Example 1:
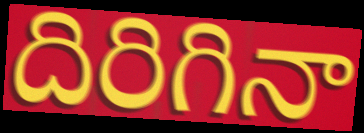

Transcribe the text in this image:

దిరిగినా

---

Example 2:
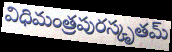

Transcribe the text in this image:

విధిమంత్రపురస్కృతమ్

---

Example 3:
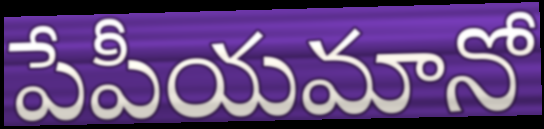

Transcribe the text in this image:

పేపీయమానో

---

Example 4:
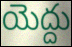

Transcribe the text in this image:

యెద్దు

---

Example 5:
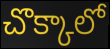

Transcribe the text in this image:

చొక్కాలో